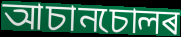
আচানচোলৰ